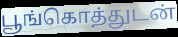
பூங்கொத்துடன்